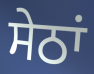
ਸੇਠਾਂ